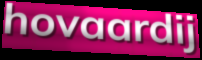
hovaardij